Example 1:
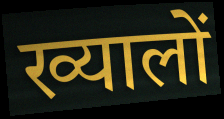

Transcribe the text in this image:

ख्यालों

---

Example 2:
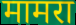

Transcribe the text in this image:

मामरा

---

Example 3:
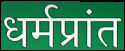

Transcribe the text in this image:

धर्मप्रांत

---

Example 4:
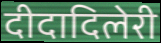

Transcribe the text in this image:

दीदादिलेरी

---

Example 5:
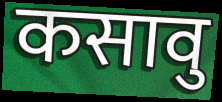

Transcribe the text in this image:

कसावु